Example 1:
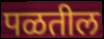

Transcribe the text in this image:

पळतील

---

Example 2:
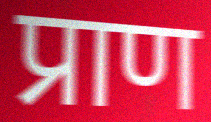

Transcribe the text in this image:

प्राण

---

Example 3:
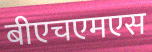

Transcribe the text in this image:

बीएचएमएस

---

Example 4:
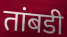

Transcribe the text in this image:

तांबडी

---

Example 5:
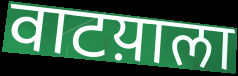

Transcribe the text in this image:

वाटय़ाला